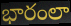
భారంలా